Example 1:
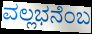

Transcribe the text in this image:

ವಲ್ಲಭನೆಂಬ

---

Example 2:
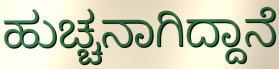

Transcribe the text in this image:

ಹುಚ್ಚನಾಗಿದ್ದಾನೆ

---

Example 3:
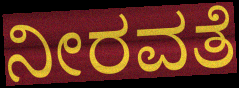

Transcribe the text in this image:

ನೀರವತೆ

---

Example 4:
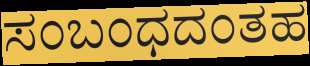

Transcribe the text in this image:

ಸಂಬಂಧದಂತಹ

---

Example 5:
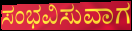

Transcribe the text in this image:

ಸಂಭವಿಸುವಾಗ